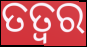
ତତ୍ଵର